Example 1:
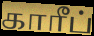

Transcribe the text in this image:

காரீப்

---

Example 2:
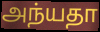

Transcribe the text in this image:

அந்யதா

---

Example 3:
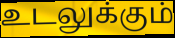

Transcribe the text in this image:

உடலுக்கும்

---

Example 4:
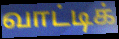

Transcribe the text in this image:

வாட்டிக்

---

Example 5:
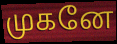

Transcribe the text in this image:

முகனே